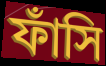
ফাঁসি